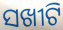
ସଖୀଟି